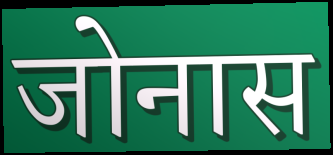
जोनास